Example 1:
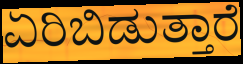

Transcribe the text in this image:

ಏರಿಬಿಡುತ್ತಾರೆ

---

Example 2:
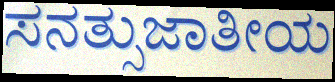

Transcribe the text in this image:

ಸನತ್ಸುಜಾತೀಯ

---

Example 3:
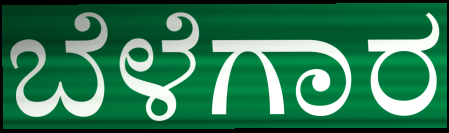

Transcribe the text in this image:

ಬೆಳೆಗಾರ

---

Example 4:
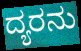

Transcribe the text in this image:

ದ್ಯರನು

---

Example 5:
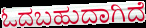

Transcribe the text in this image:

ಓದಬಹುದಾಗಿದೆ